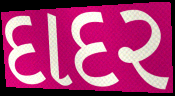
દાદર